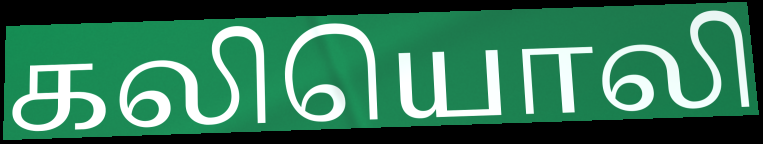
கலியொலி